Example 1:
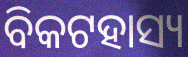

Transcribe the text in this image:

ବିକଟହାସ୍ୟ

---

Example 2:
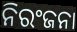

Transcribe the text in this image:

ନିରଂଜନା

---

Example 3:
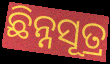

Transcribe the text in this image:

ଛିନ୍ନସୂତ୍ର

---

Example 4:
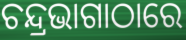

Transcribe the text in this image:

ଚନ୍ଦ୍ରଭାଗାଠାରେ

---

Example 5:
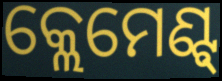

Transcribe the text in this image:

କ୍ଲେମେଣ୍ଟ୍